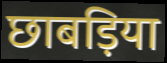
छाबड़िया